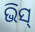
ଭିସ୍